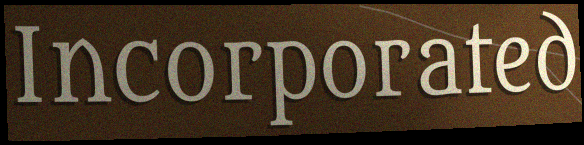
Incorporated